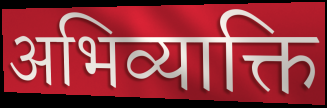
अभिव्याक्ति